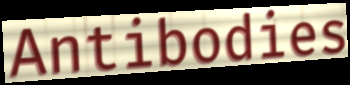
Antibodies